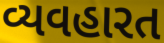
વ્યવહારત